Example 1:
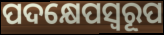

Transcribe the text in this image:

ପଦକ୍ଷେପସ୍ୱରୂପ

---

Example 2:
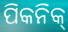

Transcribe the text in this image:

ପିକନିକ୍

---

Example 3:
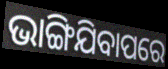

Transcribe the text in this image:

ଭାଙ୍ଗିଯିବାପରେ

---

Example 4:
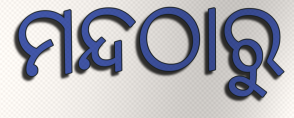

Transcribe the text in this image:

ମନ୍ଦଠାରୁ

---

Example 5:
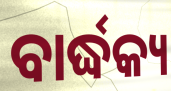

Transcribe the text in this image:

ବାର୍ଦ୍ଧକ୍ୟ